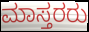
ಮಾಸ್ತರರು